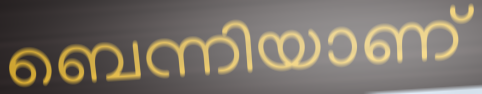
ബെന്നിയാണ്